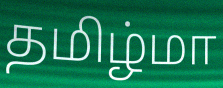
தமிழ்மா